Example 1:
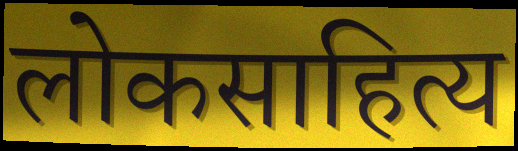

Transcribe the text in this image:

लोकसाहित्य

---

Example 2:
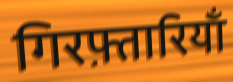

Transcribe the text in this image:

गिरफ़्तारियाँ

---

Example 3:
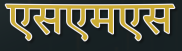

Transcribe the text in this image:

एसएमएस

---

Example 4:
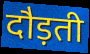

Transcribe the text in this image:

दौड़ती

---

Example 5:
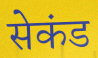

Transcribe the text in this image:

सेकंड